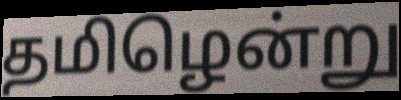
தமிழென்று